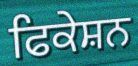
ਫਿਕੇਸ਼ਨ